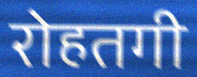
रोहतगी